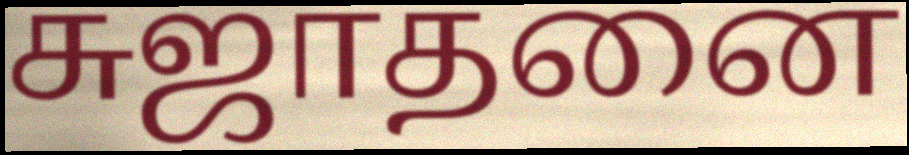
சுஜாதனை